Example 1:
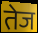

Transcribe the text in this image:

तेज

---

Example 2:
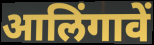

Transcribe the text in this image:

आलिंगावें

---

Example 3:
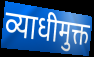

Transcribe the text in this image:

व्याधीमुक्त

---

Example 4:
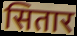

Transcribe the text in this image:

सितार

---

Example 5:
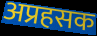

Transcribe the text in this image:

अप्रहसक